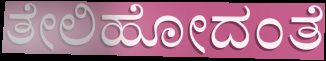
ತೇಲಿಹೋದಂತೆ